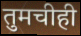
तुमचीही